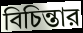
বিচিন্তার